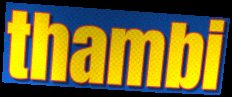
thambi